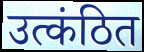
उत्कंठित